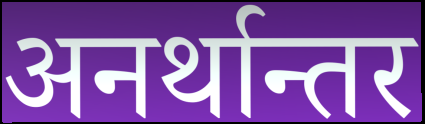
अनर्थान्तर